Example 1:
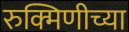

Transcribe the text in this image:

रुक्मिणीच्या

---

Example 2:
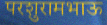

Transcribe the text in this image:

परशुरामभाऊ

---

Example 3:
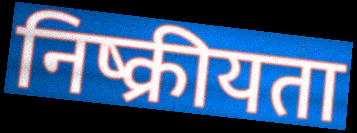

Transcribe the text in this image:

निष्क्रीयता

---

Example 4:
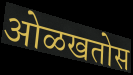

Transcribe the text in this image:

ओळखतोस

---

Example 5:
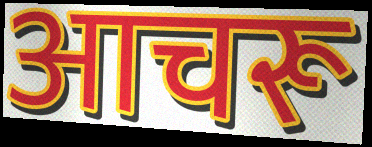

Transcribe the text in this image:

आचरू